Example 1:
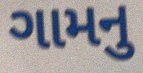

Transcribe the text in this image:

ગામનુ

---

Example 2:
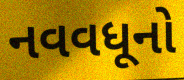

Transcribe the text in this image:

નવવધૂનો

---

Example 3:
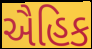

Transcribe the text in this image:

ઐહિક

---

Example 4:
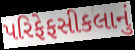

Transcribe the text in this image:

પરિફેફસીકલાનું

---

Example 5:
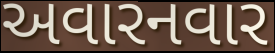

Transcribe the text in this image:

અવારનવાર